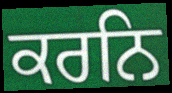
ਕਰਨਿ